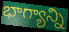
భాగ్యాన్ని